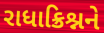
રાધાક્રિશ્નને